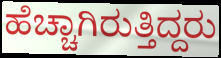
ಹೆಚ್ಚಾಗಿರುತ್ತಿದ್ದರು